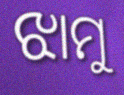
ଝାମୁ